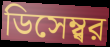
ডিসেম্ব্বর